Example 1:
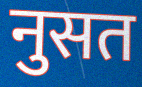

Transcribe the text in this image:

नुसत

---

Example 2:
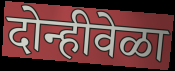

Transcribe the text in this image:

दोन्हीवेळा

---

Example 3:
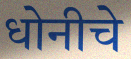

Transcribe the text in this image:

धोनीचे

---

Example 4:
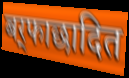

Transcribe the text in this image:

बर्फाछादित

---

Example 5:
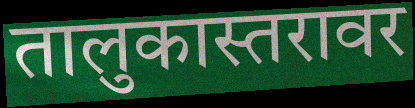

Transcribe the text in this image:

तालुकास्तरावर